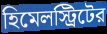
হিমেলস্ট্রিটের